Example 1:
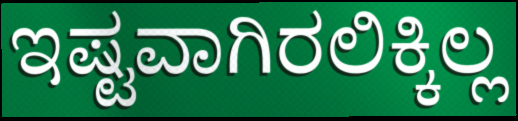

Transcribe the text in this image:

ಇಷ್ಟವಾಗಿರಲಿಕ್ಕಿಲ್ಲ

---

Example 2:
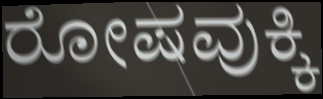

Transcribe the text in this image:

ರೋಷವುಕ್ಕಿ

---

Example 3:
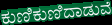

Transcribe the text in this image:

ಕುಣಿಕುಣಿದಾಡುವೆ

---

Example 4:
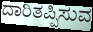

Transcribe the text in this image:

ದಾರಿತಪ್ಪಿಸುವ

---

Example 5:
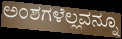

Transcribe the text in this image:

ಅಂಶಗಳೆಲ್ಲವನ್ನೂ